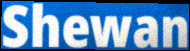
Shewan